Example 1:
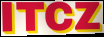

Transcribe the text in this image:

ITCZ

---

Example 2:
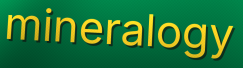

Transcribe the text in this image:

mineralogy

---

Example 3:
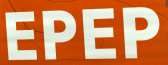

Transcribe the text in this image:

EPEP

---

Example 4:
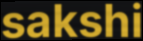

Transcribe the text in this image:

sakshi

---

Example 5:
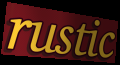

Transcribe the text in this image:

rustic